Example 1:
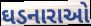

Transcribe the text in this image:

ઘડનારાઓ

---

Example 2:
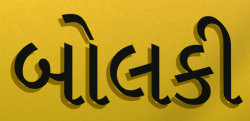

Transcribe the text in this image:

બોલકી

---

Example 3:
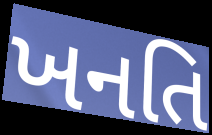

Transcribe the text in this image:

ખનતિ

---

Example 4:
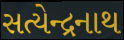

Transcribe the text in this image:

સત્યેન્દ્રનાથ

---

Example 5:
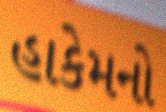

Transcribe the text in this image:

હાકેમનો